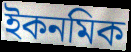
ইকনমিক